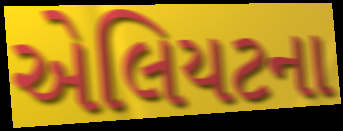
એલિયટના